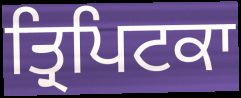
ਤ੍ਰਿਪਿਟਕਾ